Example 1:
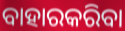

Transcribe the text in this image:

ବାହାରକରିବା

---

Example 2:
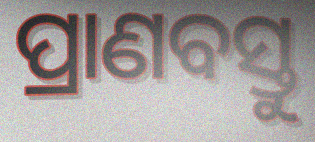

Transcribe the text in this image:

ପ୍ରାଣବସ୍ତୁ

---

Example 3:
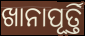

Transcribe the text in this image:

ଖାନାପୂର୍ତ୍ତି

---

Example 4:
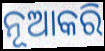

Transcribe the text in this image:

ନୂଆକରି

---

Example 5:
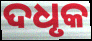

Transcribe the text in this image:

ଦଧୃକ